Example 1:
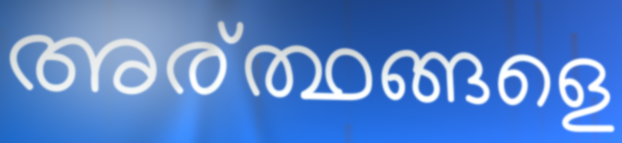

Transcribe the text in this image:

അര്ത്ഥങ്ങളെ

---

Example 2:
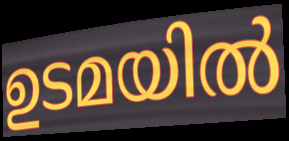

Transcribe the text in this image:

ഉടമയിൽ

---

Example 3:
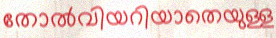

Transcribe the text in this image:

തോൽവിയറിയാതെയുള്ള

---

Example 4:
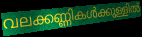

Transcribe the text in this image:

വലക്കണ്ണികൾക്കുള്ളിൽ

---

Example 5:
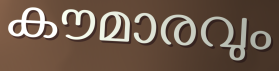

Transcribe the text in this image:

കൗമാരവും